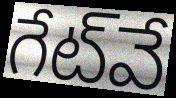
గేట్‌వే